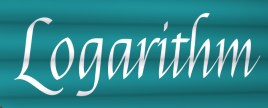
Logarithm